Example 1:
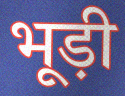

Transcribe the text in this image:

भूड़ी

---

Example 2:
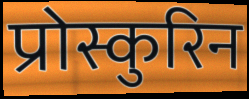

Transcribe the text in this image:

प्रोस्कुरिन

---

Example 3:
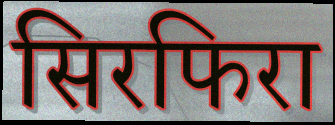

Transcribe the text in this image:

सिरफिरा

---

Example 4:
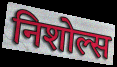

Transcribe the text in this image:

निशोल्स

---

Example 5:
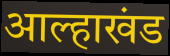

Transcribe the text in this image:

आल्हाखंड